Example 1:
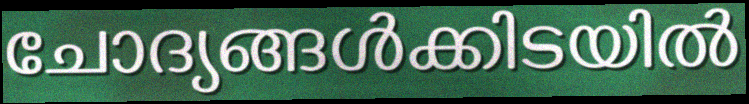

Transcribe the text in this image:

ചോദ്യങ്ങൾക്കിടയിൽ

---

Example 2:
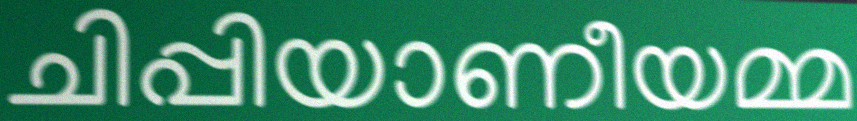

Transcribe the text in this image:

ചിപ്പിയാണീയമ്മ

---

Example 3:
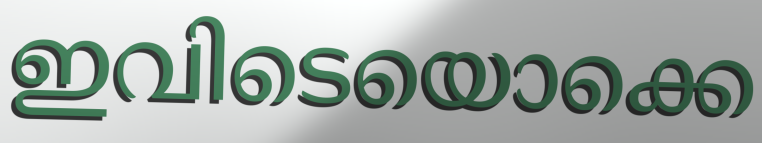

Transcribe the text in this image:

ഇവിടെയൊക്കെ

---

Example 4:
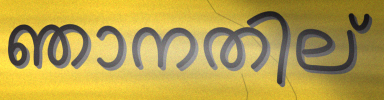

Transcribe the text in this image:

ഞാനതില്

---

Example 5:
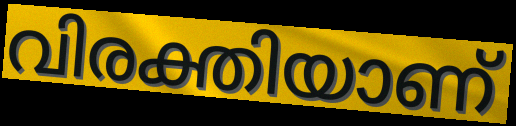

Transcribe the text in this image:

വിരക്തിയാണ്